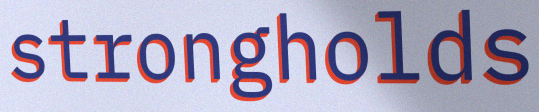
strongholds